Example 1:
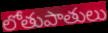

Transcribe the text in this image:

లోతుపాతులు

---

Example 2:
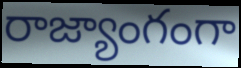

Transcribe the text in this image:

రాజ్యాంగంగా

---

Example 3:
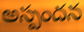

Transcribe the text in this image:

అస్పందన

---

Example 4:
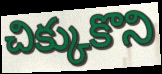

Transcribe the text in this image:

చిక్కుకొని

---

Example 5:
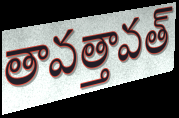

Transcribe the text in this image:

తావత్తావత్